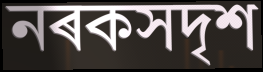
নৰকসদৃশ